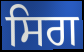
ਸਿਗ